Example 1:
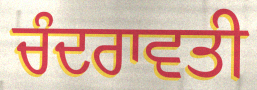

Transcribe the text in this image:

ਚੰਦਰਾਵਤੀ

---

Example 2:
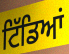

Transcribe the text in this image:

ਟਿੱਡਿਆਂ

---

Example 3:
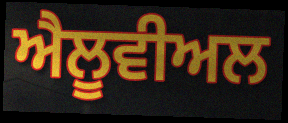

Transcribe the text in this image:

ਐਲੂਵੀਅਲ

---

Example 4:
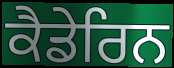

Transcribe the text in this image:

ਕੈਡੇਰਿਨ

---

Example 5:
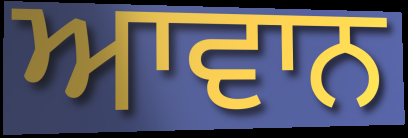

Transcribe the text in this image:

ਆਵਾਨ